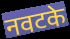
नवटके